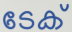
ടേക്